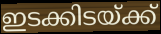
ഇടക്കിടയ്ക്ക്